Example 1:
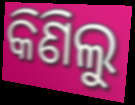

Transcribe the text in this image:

କିଣିଲୁ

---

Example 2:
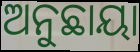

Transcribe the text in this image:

ଅନୁଛାୟା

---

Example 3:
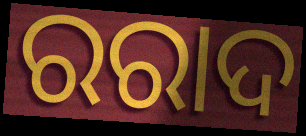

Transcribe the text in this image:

ରରାଦ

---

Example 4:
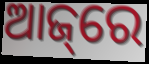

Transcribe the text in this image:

ଆଜ୍‌ରେ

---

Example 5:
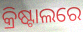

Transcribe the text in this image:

କ୍ରିଷ୍ଟାଲରେ